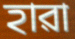
হাৱা